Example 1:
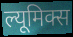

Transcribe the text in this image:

ल्यूमिक्स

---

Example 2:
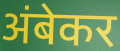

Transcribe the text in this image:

अंबेकर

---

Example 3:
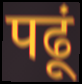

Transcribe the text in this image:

पढूं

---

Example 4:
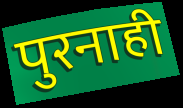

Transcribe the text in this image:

पुरनाही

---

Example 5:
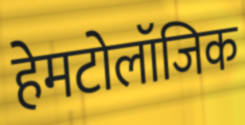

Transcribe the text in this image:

हेमटोलॉजिक